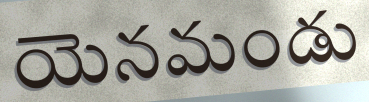
యెనమండు